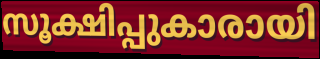
സൂക്ഷിപ്പുകാരായി